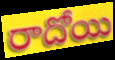
రాదోయి